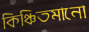
কিঞ্চিতমানো